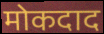
मोकदाद